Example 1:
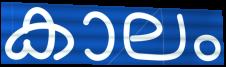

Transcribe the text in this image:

കാലം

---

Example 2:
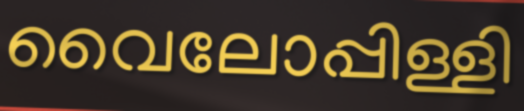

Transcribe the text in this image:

വൈലോപ്പിള്ളി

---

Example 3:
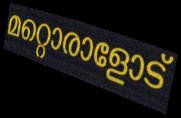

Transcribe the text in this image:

മറ്റൊരാളോട്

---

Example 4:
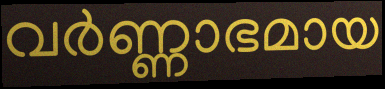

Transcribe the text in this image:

വർണ്ണാഭമായ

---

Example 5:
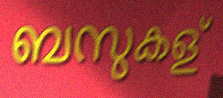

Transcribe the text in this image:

ബസുകള്